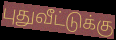
புதுவீட்டுக்கு